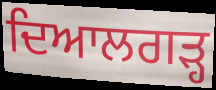
ਦਿਆਲਗੜ੍ਹ